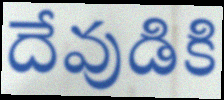
దేవుడికి